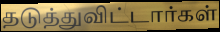
தடுத்துவிட்டார்கள்